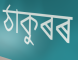
ঠাকুৰৰ